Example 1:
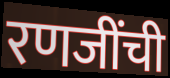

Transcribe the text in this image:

रणजींची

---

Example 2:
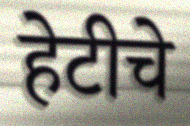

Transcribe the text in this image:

हेटीचे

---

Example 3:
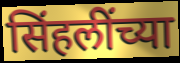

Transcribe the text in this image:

सिंहलींच्या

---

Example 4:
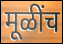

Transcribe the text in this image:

मूळींच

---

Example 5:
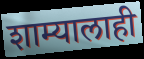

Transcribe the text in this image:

शाम्यालाही